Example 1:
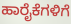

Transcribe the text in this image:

ಹಾರೈಕೆಗಳಿಗೆ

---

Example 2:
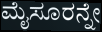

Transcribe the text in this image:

ಮೈಸೂರನ್ನೇ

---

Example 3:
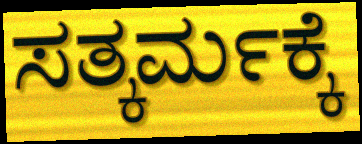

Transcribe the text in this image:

ಸತ್ಕರ್ಮಕ್ಕೆ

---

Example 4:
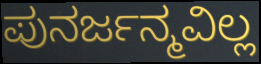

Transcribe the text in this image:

ಪುನರ್ಜನ್ಮವಿಲ್ಲ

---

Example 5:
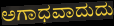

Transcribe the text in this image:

ಅಗಾಧವಾದುದು